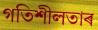
গতিশীলতাৰ